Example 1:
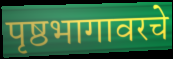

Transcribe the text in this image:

पृष्ठभागावरचे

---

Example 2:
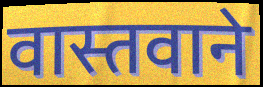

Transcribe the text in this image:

वास्तवाने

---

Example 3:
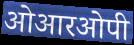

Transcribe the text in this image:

ओआरओपी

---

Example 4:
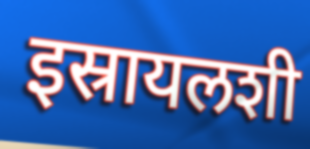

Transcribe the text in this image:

इस्रायलशी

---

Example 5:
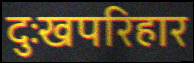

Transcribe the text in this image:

दुःखपरिहार